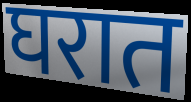
घरात